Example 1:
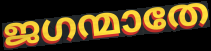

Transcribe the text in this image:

ജഗന്മാതേ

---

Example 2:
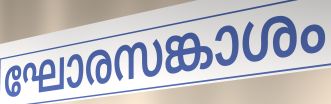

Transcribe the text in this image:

ഘോരസങ്കാശം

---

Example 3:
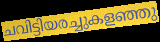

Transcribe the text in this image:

ചവിട്ടിയരച്ചുകളഞ്ഞു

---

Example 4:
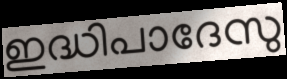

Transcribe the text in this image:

ഇദ്ധിപാദേസു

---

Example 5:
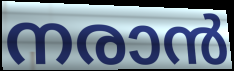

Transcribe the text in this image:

നരാൻ